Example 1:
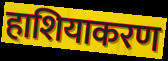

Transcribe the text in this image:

हाशियाकरण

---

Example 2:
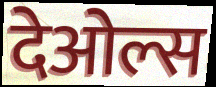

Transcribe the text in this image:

देओल्स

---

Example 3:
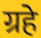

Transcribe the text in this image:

ग्रहे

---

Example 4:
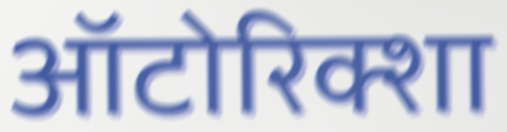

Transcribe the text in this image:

ऑटोरिक्शा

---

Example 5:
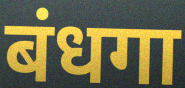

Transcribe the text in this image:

बंधगा